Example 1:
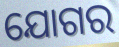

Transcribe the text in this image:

ଯୋଗର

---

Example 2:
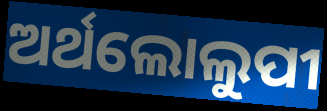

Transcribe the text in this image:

ଅର୍ଥଲୋଲୁପୀ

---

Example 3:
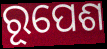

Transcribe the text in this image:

ରୂପେଶ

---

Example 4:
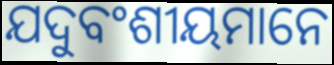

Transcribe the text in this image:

ଯଦୁବଂଶୀୟମାନେ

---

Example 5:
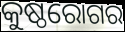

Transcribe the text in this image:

କୁଷ୍ଠରୋଗର